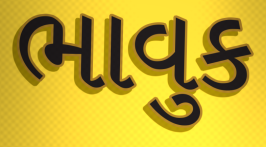
ભાવુક